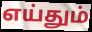
எய்தும்